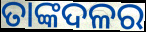
ତାଙ୍କଦଳର